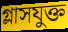
গ্লাসযুক্ত